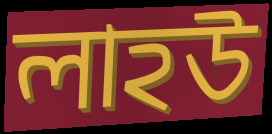
লাহউ